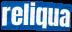
reliqua